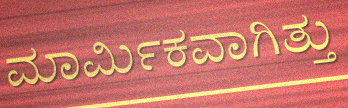
ಮಾರ್ಮಿಕವಾಗಿತ್ತು